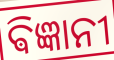
ଵିଜ୍ଞାନୀ